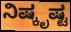
ನಿಷ್ಕೃಷ್ಟ